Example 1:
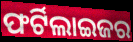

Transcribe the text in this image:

ଫର୍ଟିଲାଇଜର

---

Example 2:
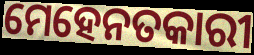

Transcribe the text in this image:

ମେହେନତକାରୀ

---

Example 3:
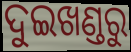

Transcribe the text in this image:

ଦୁଇଖଣ୍ଡରୁ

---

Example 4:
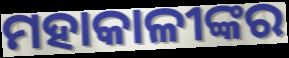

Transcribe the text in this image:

ମହାକାଳୀଙ୍କର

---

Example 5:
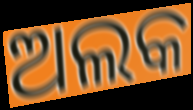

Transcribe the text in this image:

ଅଲକ